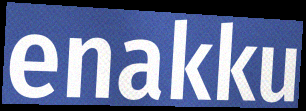
enakku